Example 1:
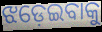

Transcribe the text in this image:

ଝଡ଼େଇବାକୁ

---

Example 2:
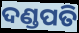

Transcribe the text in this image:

ଦଣ୍ଡପତି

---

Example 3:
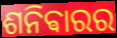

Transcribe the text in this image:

ଶନିଵାରର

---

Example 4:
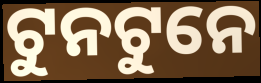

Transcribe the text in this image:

ଟୁନଟୁନେ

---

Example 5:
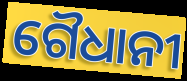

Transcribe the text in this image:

ଗୈଧାନୀ